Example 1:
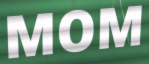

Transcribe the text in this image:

MOM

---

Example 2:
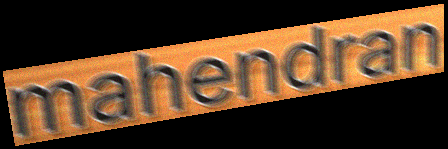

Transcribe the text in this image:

mahendran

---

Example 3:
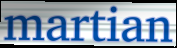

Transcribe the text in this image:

martian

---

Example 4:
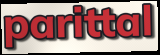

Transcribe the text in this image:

parittal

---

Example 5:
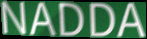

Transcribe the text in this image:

NADDA